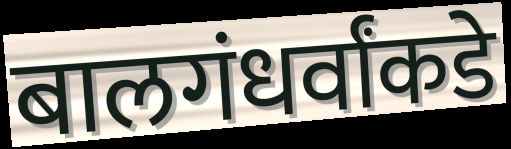
बालगंधर्वांकडे